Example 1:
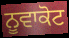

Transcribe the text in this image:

ਨੂਵਾਕੋਟ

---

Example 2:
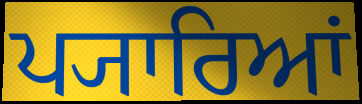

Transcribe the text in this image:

ਪ੍ਯਾਰਿਆਂ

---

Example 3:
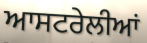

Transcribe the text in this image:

ਆਸਟਰੇਲੀਆਂ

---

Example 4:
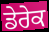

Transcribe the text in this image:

ਡੇਰੇਕ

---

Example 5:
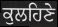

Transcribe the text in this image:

ਕੁਲਹਿਣੇ